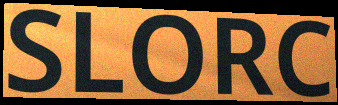
SLORC